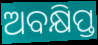
ଅବକ୍ଷିପ୍ତ